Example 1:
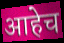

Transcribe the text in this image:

आहेच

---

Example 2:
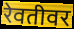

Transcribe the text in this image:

रेवतीवर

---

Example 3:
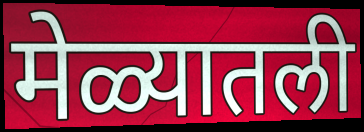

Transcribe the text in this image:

मेळ्यातली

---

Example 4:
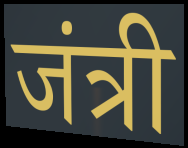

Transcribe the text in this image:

जंत्री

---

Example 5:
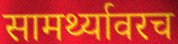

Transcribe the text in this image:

सामर्थ्यावरच